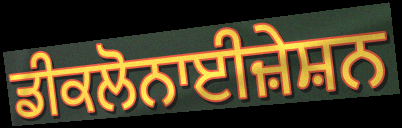
ਡੀਕਲੋਨਾਈਜ਼ੇਸ਼ਨ